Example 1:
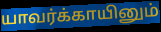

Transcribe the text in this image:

யாவர்க்காயினும்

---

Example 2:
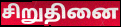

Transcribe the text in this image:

சிறுதினை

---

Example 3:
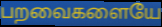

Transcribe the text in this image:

பறவைகளையே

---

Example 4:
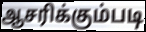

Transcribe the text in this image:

ஆசரிக்கும்படி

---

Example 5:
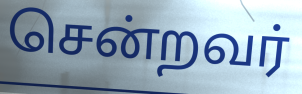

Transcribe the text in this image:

சென்றவர்